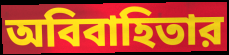
অবিবাহিতার